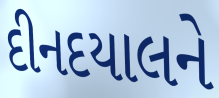
દીનદયાલને